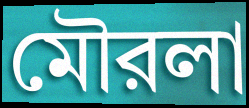
মৌরলা